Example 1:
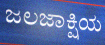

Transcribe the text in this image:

ಜಲಜಾಕ್ಷಿಯ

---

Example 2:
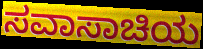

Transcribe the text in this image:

ಸವಾಸಾಚಿಯ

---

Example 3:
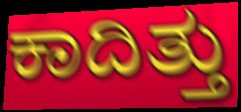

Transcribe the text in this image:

ಕಾದಿತ್ತು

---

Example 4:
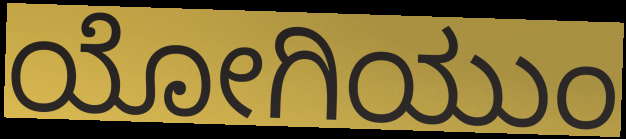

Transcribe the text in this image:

ಯೋಗಿಯುಂ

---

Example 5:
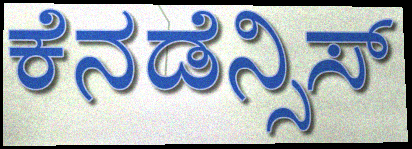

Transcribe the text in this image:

ಕೆನಡೆನ್ಸಿಸ್